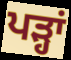
ਪੜ੍ਹਾਂ